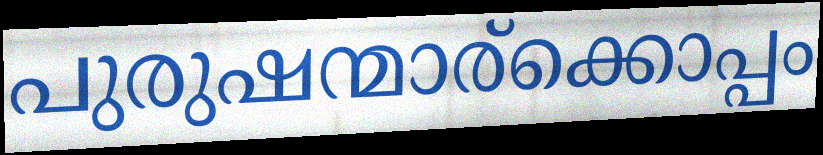
പുരുഷന്മാര്ക്കൊപ്പം